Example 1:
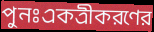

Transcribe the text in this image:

পুনঃএকত্রীকরণের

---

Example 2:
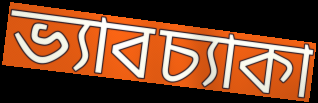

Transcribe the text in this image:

ভ্যাবচ্যাকা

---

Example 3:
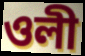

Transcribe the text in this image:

ওলী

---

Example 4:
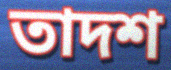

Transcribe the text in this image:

তাদশ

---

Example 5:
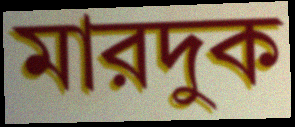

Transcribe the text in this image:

মারদুক